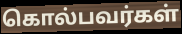
கொல்பவர்கள்